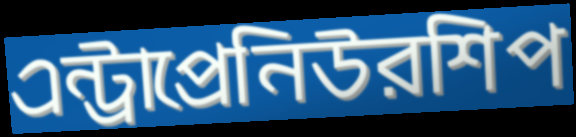
এন্ট্রাপ্রেনিউরশিপ